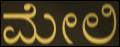
ಮೇಲಿ